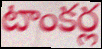
టాంకర్ల